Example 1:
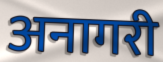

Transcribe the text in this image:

अनागरी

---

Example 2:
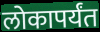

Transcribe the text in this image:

लोकापर्यंत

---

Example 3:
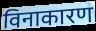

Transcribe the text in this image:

विनाकारण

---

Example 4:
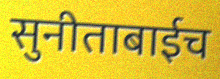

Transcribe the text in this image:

सुनीताबाईच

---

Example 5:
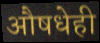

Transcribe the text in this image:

औषधेही